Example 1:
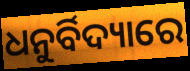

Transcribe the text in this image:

ଧନୁର୍ବିଦ୍ୟାରେ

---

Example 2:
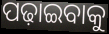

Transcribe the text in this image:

ପଢ଼ାଇବାକୁ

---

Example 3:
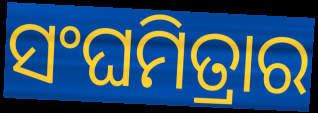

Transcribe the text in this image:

ସଂଘମିତ୍ରାର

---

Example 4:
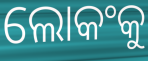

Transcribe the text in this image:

ଲୋକଂକୁ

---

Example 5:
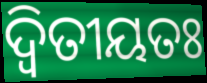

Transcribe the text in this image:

ଦ୍ବିତୀୟତଃ